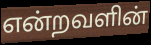
என்றவளின்